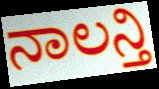
ನಾಲನ್ತಿ